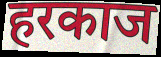
हरकाज